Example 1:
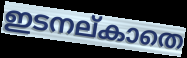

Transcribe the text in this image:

ഇടനല്കാതെ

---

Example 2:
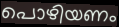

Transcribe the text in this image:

പൊഴിയണം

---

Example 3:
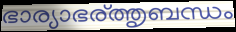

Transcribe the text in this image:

ഭാര്യാഭര്ത്തൃബന്ധം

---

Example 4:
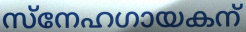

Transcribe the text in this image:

സ്നേഹഗായകന്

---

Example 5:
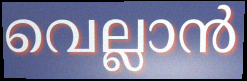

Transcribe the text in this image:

വെല്ലാൻ